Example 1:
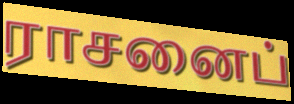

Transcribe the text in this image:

ராசனைப்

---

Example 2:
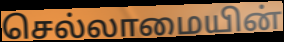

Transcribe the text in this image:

செல்லாமையின்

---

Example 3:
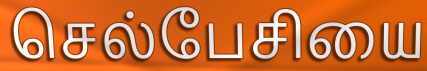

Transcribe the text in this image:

செல்பேசியை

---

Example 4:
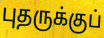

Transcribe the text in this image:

புதருக்குப்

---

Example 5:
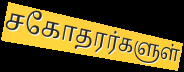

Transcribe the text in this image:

சகோதரர்களுள்